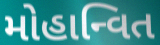
મોહાન્વિત